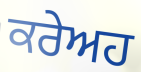
ਕਰੇਅਹ